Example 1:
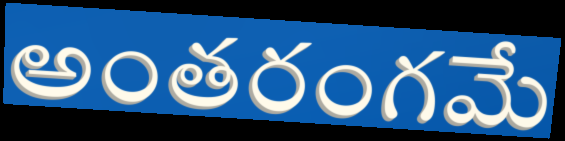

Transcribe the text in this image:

అంతరంగమే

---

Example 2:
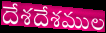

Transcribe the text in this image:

దేశదేశముల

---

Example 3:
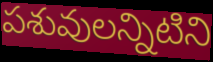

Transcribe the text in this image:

పశువులన్నిటిని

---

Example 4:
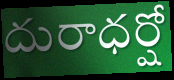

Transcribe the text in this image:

దురాధర్షో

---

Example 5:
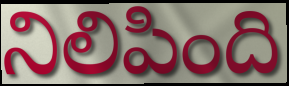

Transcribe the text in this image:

నిలిపింది